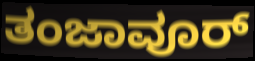
ತಂಜಾವೂರ್